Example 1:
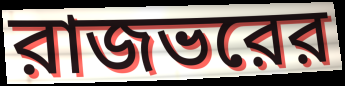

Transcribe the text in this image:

রাজভরের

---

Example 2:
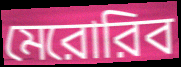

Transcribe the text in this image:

মেরোরিব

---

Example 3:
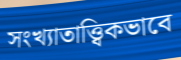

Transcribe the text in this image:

সংখ্যাতাত্ত্বিকভাবে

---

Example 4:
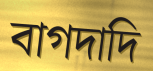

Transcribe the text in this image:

বাগদাদি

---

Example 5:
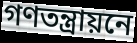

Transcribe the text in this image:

গণতন্ত্রায়নে